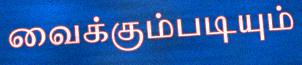
வைக்கும்படியும்